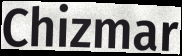
Chizmar